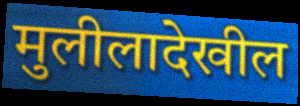
मुलीलादेखील